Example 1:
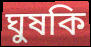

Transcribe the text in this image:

ঘুষকি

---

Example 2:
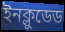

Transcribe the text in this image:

ইনক্লুডেড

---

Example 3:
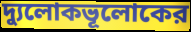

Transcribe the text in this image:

দ্যুলোকভূলোকের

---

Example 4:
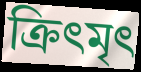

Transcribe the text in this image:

ক্রিৎমৃৎ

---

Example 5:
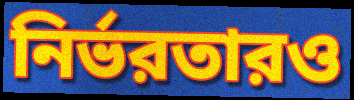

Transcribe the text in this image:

নির্ভরতারও